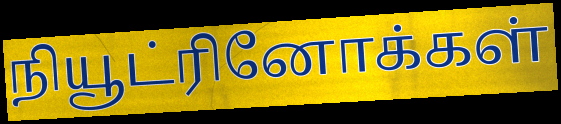
நியூட்ரினோக்கள்